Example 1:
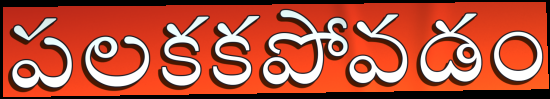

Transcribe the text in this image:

పలకకపోవడం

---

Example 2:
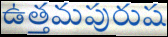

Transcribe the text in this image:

ఉత్తమపురుష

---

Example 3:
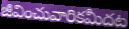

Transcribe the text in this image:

జీవించువారికమీదట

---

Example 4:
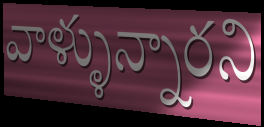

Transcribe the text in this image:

వాళ్ళున్నారని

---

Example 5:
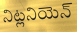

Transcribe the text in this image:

నిట్లనియెన్